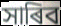
সাৰিব